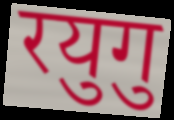
रयुगु